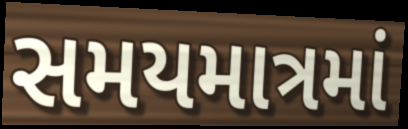
સમયમાત્રમાં